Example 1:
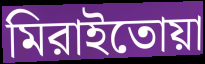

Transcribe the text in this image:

মিরাইতোয়া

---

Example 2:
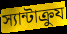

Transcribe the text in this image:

স্যান্টাক্রুয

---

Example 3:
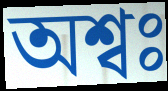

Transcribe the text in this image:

অশ্বঃ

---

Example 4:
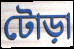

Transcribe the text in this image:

টোড়া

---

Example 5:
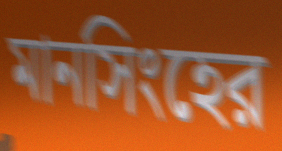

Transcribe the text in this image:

মানসিংহের